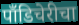
पाँडिचेरीचा